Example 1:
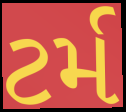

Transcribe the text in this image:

ટર્મ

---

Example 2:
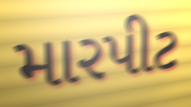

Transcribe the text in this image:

મારપીટ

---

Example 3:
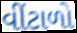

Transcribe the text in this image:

વીંટાળો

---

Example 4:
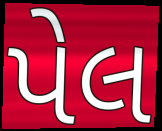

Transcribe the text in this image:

પેલ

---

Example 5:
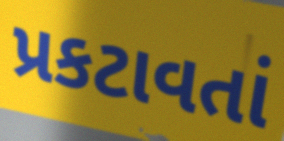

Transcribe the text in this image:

પ્રકટાવતાં